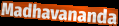
Madhavananda